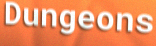
Dungeons